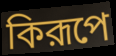
কিরূপে